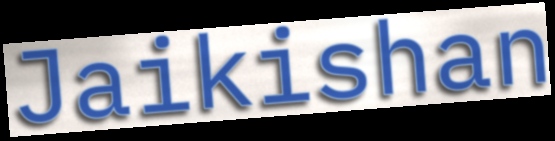
Jaikishan